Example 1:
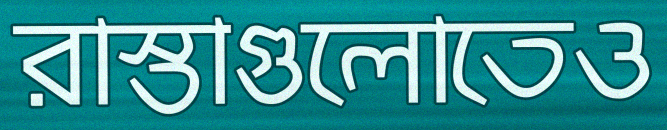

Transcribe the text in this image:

রাস্তাগুলোতেও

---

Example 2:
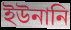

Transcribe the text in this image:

ইউনানি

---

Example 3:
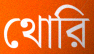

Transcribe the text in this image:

থোরি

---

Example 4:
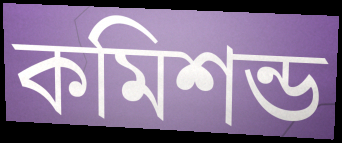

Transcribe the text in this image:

কমিশন্ড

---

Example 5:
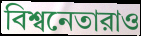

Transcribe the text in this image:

বিশ্বনেতারাও